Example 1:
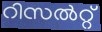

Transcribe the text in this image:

റിസൽറ്റ്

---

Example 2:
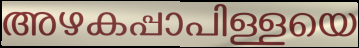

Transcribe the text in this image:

അഴകപ്പാപിള്ളയെ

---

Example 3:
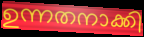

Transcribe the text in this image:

ഉന്നതനാക്കി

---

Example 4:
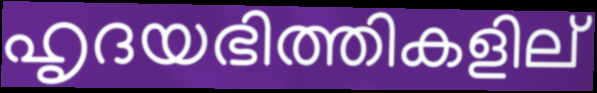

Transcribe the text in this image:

ഹൃദയഭിത്തികളില്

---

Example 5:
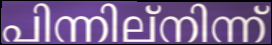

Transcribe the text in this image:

പിന്നില്നിന്ന്